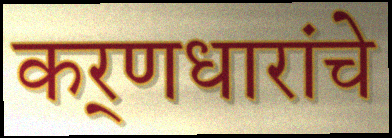
कर्णधारांचे